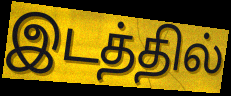
இடத்தில்